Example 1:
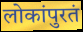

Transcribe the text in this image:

लोकांपुरतं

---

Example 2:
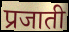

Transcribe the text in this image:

प्रजाती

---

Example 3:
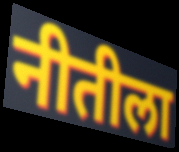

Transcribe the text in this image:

नीतीला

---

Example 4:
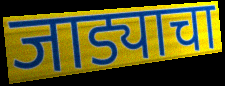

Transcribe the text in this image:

जाड्याचा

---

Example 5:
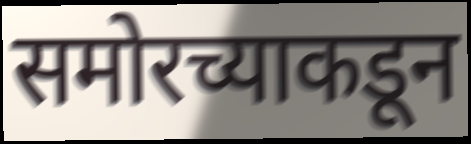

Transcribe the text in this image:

समोरच्याकडून